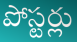
పోస్టర్లు